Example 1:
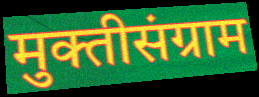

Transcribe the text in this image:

मुक्तीसंग्राम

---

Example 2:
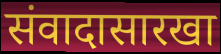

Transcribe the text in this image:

संवादासारखा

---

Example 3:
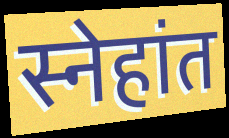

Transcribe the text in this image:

स्नेहांत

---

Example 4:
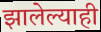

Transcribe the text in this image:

झालेल्याही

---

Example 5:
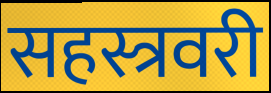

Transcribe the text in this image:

सहस्त्रवरी